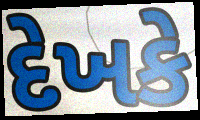
દેખકે